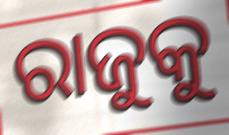
ରାଜୁକୁ